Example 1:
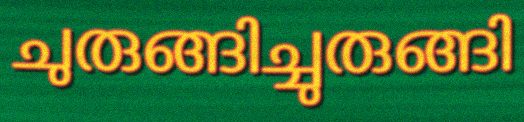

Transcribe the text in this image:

ചുരുങ്ങിച്ചുരുങ്ങി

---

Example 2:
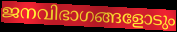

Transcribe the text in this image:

ജനവിഭാഗങ്ങളോടും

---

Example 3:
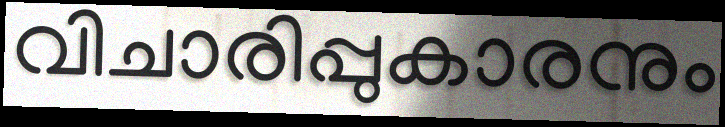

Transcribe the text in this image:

വിചാരിപ്പുകാരനും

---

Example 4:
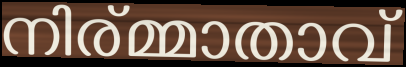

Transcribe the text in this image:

നിര്മ്മാതാവ്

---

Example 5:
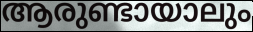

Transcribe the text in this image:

ആരുണ്ടായാലും